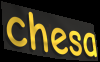
chesa